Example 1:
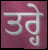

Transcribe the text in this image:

ਤਰ੍ਹੇ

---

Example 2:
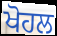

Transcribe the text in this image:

ਖੋਹਲ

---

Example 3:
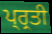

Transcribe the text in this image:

ਪ੍ਰ੍ਰਤੀ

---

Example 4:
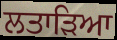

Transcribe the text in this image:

ਲਤਾੜਿਆ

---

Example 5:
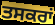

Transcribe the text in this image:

ਤਸਕਰਾਂ